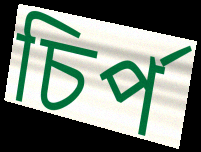
চির্প